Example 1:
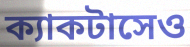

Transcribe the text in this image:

ক্যাকটাসেও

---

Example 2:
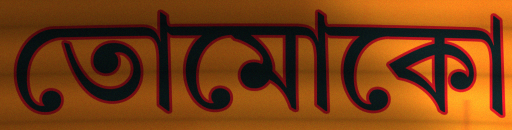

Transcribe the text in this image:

তোমোকো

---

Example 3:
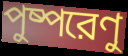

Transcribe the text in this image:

পুষ্পরেণু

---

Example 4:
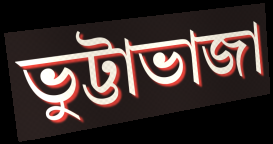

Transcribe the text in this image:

ভুট্টাভাজা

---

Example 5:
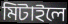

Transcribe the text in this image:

মিটাইলে